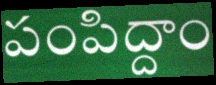
పంపిద్దాం